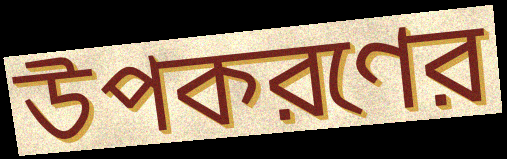
উপকরণের